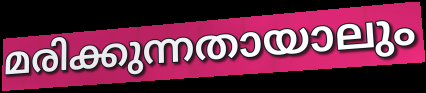
മരിക്കുന്നതായാലും